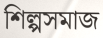
শিল্পসমাজ